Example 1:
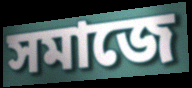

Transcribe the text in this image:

সমাজে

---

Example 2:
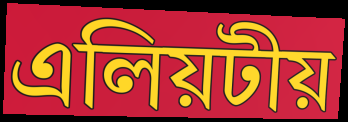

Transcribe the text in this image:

এলিয়টীয়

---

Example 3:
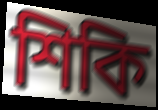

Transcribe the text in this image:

শিকি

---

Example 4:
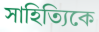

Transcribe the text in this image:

সাহিত্যিকে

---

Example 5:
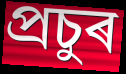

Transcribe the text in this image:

প্ৰচুৰ